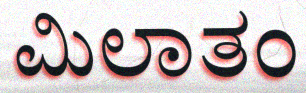
ಮಿಲಾತಂ